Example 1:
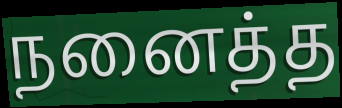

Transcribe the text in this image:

நனைத்த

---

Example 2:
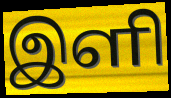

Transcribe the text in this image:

இளி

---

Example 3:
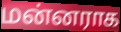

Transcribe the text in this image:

மன்னராக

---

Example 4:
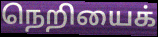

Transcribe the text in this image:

நெறியைக்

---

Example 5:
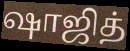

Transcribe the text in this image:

ஷாஜித்